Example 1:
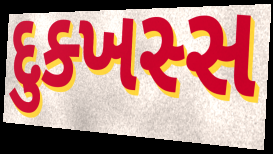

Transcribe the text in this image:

દુક્ખસ્સ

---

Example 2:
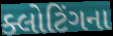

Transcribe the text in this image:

ક્લોટિંગના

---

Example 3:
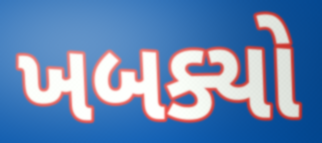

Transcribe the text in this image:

ખબક્યો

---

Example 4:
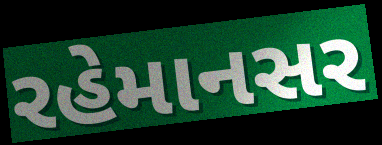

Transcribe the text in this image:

રહેમાનસર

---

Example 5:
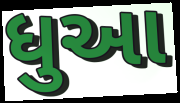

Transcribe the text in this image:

ધુઆ